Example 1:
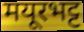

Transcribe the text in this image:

मयूरभट्ट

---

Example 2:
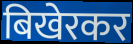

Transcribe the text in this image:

बिखेरकर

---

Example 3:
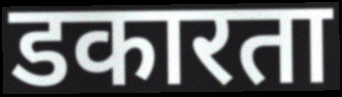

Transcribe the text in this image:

डकारता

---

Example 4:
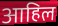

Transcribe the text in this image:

आहिल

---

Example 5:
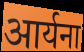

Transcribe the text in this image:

आर्यना